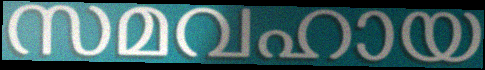
സമവഹായ